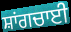
ਸ਼ਾਂਗਚਾਈ